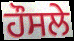
ਹੌਸਲੇ